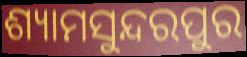
ଶ୍ୟାମସୁନ୍ଦରପୁର